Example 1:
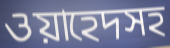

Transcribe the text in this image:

ওয়াহেদসহ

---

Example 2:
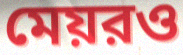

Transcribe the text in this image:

মেয়রও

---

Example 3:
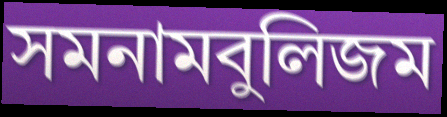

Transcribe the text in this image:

সমনামবুলিজম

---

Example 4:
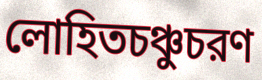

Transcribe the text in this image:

লোহিতচঞ্চুচরণ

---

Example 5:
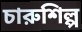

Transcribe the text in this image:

চারুশিল্প